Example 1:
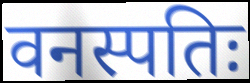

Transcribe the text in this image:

वनस्पतिः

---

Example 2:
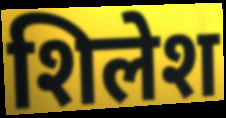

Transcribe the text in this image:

शिलेश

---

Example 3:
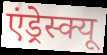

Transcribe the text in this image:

एंड्रेस्क्यू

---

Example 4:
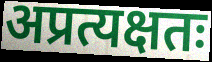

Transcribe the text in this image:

अप्रत्यक्षतः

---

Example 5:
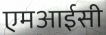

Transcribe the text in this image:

एमआईसी